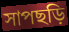
সাপছড়ি